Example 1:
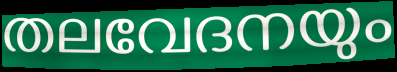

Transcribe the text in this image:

തലവേദനയും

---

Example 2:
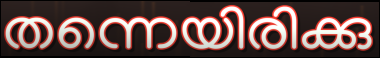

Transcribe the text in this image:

തന്നെയിരിക്കു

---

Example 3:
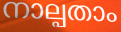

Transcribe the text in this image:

നാല്പതാം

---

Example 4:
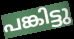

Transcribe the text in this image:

പങ്കിട്ടു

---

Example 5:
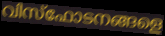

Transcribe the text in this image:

വിസ്ഫോടനങ്ങളെ